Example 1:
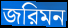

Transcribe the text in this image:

জরিমন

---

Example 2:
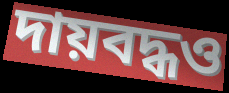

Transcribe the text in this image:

দায়বদ্ধও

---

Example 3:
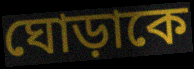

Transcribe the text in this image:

ঘোড়াকে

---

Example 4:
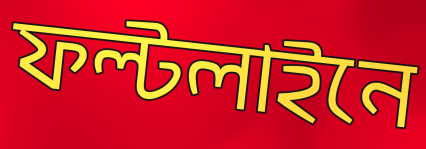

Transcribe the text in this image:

ফল্টলাইনে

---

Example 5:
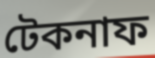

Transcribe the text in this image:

টেকনাফ